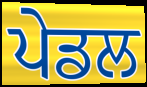
ਪੇਡਲ